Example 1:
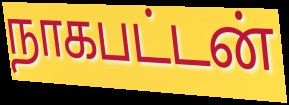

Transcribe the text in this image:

நாகபட்டன்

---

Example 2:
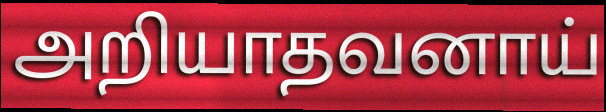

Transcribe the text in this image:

அறியாதவனாய்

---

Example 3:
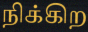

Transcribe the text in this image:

நிக்கிற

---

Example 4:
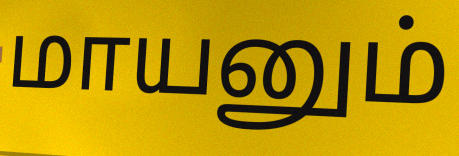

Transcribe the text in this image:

மாயனும்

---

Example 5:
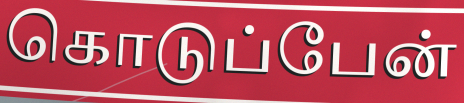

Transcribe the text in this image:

கொடுப்பேன்